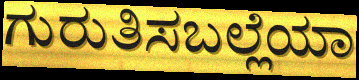
ಗುರುತಿಸಬಲ್ಲೆಯಾ